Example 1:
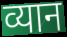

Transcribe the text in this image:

व्यान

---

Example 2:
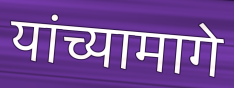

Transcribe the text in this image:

यांच्यामागे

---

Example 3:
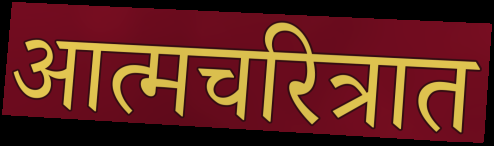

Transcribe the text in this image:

आत्मचरित्रात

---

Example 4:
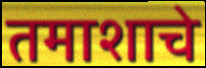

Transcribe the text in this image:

तमाशाचे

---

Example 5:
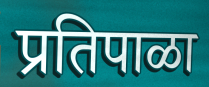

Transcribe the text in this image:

प्रतिपाळा